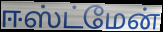
ஈஸ்ட்மேன்